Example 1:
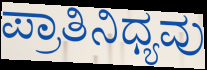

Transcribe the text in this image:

ಪ್ರಾತಿನಿಧ್ಯವು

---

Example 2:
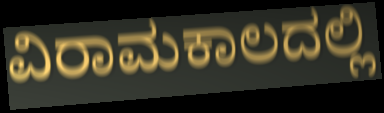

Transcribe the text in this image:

ವಿರಾಮಕಾಲದಲ್ಲಿ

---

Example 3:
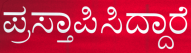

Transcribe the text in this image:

ಪ್ರಸ್ತಾಪಿಸಿದ್ದಾರೆ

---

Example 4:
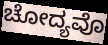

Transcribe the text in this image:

ಚೋದ್ಯವೊ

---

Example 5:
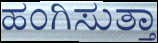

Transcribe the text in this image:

ಹಂಗಿಸುತ್ತಾ